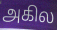
அகில